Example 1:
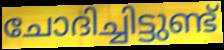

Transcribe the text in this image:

ചോദിച്ചിട്ടുണ്ട്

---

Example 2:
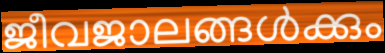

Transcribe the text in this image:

ജീവജാലങ്ങൾക്കും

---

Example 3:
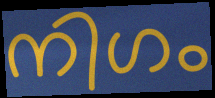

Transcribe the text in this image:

നിഗം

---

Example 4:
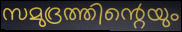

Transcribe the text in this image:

സമുദ്രത്തിന്റെയും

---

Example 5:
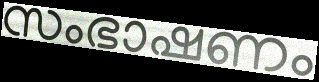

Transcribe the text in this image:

സംഭാഷണം